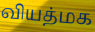
வியத்மக